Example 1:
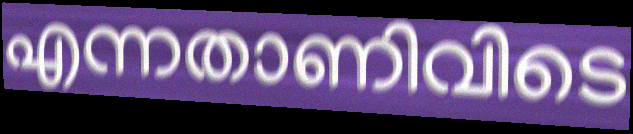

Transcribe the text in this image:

എന്നതാണിവിടെ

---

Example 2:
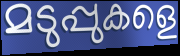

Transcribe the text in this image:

മടുപ്പുകളെ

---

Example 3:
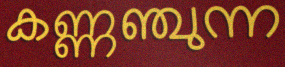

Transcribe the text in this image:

കണ്ണഞ്ചുന്ന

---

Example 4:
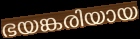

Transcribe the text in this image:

ഭയങ്കരിയായ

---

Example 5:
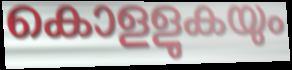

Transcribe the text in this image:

കൊളളുകയും